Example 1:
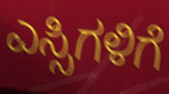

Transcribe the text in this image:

ಎಸ್ಸಿಗಳಿಗೆ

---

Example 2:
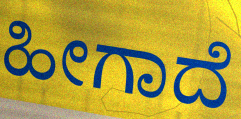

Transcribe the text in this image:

ಹೀಗಾದೆ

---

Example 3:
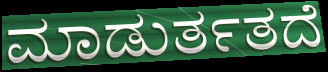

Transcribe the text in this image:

ಮಾಡುರ್ತತದೆ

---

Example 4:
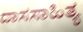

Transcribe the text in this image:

ದಾಸಸಾಹಿತ್ಯ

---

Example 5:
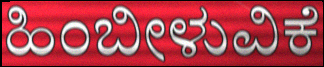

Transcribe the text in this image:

ಹಿಂಬೀಳುವಿಕೆ